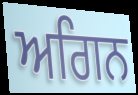
ਅਗਿਨ